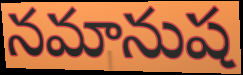
నమానుష